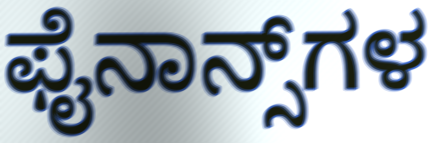
ಫೈನಾನ್ಸ್‌ಗಳ